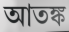
আতঙ্ক